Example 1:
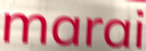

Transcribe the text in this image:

marai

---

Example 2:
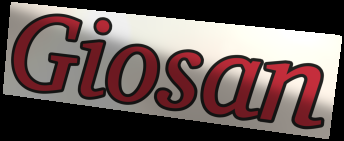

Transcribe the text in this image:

Giosan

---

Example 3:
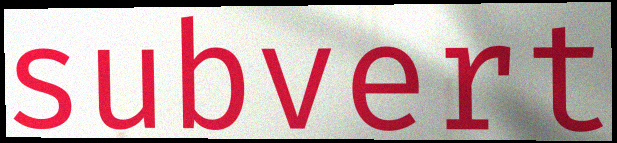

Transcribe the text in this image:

subvert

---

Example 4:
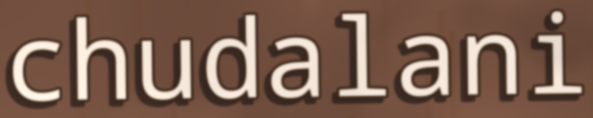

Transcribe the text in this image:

chudalani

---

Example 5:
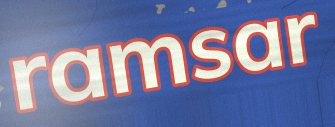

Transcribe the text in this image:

ramsar